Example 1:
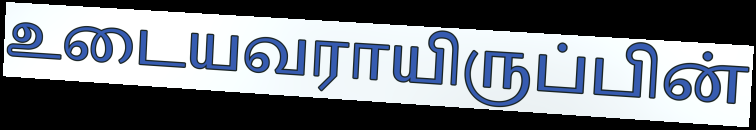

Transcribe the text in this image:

உடையவராயிருப்பின்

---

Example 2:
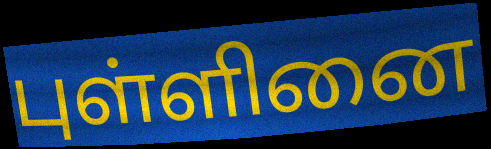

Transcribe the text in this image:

புள்ளினை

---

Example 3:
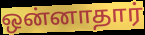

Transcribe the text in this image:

ஒன்னாதார்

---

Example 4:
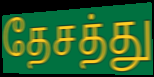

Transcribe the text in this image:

தேசத்து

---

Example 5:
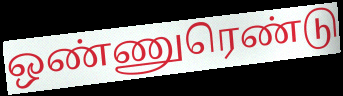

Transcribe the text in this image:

ஒண்ணுரெண்டு